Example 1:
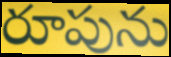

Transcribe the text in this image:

రూపును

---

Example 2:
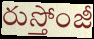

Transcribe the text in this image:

రుస్తోంజీ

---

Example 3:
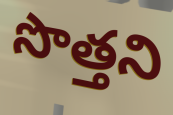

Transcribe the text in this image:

సొత్తని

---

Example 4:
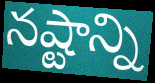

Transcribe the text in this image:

నష్టాన్ని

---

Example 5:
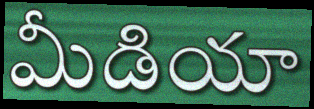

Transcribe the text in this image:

మీడియా